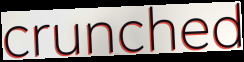
crunched